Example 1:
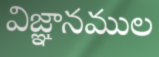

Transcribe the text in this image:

విజ్ఞానముల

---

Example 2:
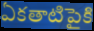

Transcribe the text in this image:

ఏకతాటిపైకి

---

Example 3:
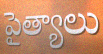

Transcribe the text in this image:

పైత్యాలు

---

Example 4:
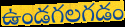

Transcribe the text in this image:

ఉండగలగడం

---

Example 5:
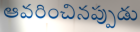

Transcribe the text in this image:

ఆవరించినప్పుడు